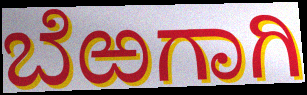
ಬೆಱಗಾಗಿ